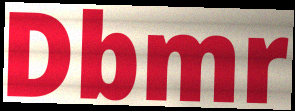
Dbmr